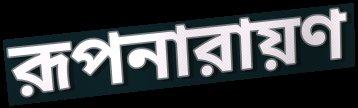
রূপনারায়ণ